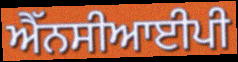
ਐੱਨਸੀਆਈਪੀ